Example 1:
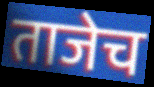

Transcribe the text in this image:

ताजेच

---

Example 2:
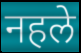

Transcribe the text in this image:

नहले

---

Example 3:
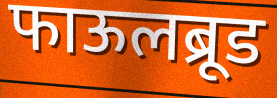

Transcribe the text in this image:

फाऊलब्रूड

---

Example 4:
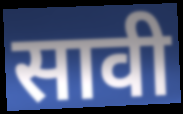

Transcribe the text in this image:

सावी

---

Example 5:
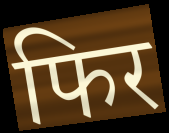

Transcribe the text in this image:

फिर